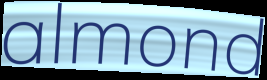
almond